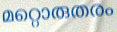
മറ്റൊരുതരം